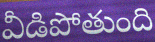
వీడిపోతుంది